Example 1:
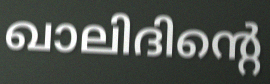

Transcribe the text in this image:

ഖാലിദിന്റെ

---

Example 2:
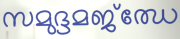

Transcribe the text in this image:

സമുദ്ദമജ്ഝേ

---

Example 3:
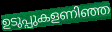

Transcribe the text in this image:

ഉടുപ്പുകളണിഞ്ഞ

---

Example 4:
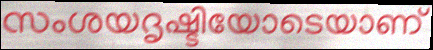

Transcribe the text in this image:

സംശയദൃഷ്ടിയോടെയാണ്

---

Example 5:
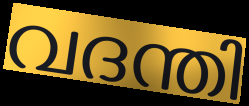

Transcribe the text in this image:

വദന്തി